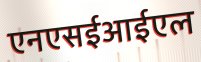
एनएसईआईएल